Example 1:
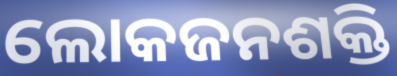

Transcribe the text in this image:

ଲୋକଜନଶକ୍ତି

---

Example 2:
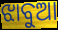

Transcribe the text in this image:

ଝାବୁଆ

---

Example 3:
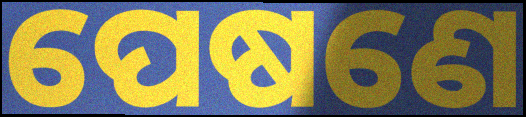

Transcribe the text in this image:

ପେଷଣେ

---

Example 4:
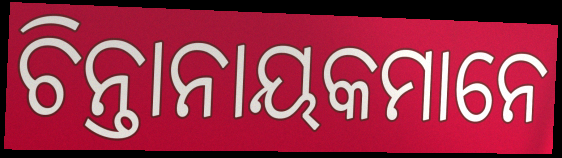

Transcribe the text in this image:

ଚିନ୍ତାନାୟକମାନେ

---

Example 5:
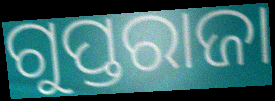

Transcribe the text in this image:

ଗୁପ୍ତରାଜା